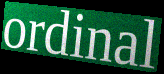
ordinal